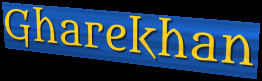
Gharekhan